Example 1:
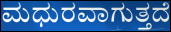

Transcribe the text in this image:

ಮಧುರವಾಗುತ್ತದೆ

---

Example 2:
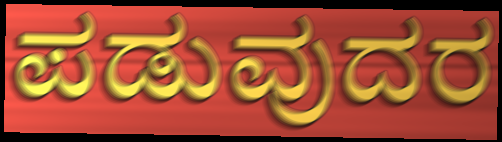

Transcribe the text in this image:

ಪಡುವುದರ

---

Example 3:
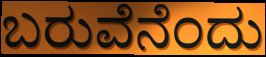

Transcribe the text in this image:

ಬರುವೆನೆಂದು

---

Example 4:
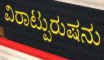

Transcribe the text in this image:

ವಿರಾಟ್ಪುರುಷನು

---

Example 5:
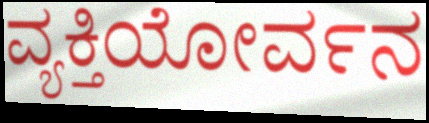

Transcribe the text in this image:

ವ್ಯಕ್ತಿಯೋರ್ವನ